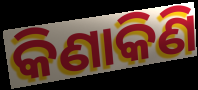
କିଣାକିଣି